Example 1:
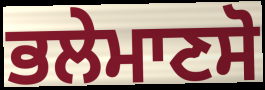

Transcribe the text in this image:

ਭਲੇਮਾਣਸੋ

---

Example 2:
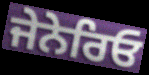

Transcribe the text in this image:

ਜੇਨੇਰਿਓ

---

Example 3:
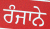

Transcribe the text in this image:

ਰੰਜਾਨੇ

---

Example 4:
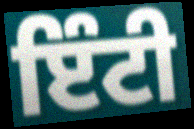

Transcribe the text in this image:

ਇੰਟੀ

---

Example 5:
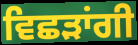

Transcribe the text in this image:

ਵਿਛੜਾਂਗੀ